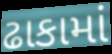
ઢાકામાં